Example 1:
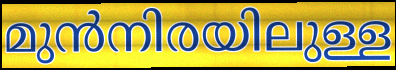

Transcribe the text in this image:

മുൻനിരയിലുള്ള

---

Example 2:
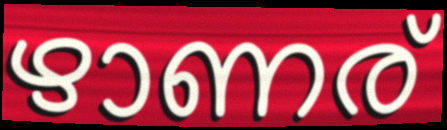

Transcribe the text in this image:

ഴാണര്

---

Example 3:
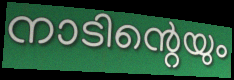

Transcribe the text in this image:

നാടിന്റെയും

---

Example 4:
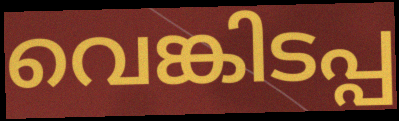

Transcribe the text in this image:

വെങ്കിടപ്പ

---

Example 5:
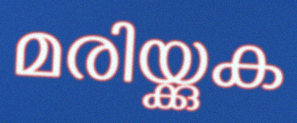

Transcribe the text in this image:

മരിയ്ക്കുക